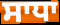
ਸਾਧਾ